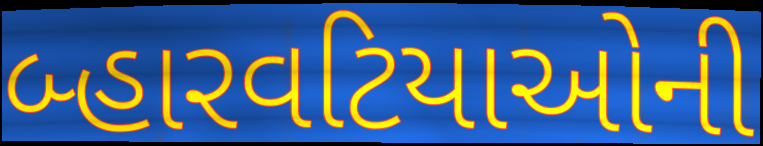
બ્હારવટિયાઓની